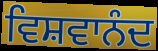
ਵਿਸ਼ਵਾਨੰਦ